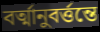
বর্ত্মানুবর্ত্তন্তে